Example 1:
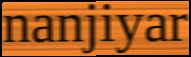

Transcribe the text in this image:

nanjiyar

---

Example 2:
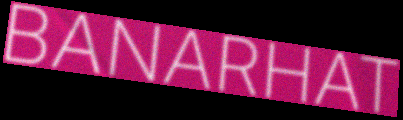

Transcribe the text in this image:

BANARHAT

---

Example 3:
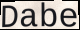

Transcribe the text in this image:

Dabe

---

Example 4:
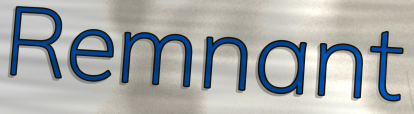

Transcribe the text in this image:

Remnant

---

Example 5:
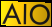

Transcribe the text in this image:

AIO